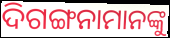
ଦିଗଙ୍ଗନାମାନଙ୍କୁ